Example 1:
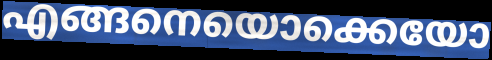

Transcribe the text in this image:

എങ്ങനെയൊക്കെയോ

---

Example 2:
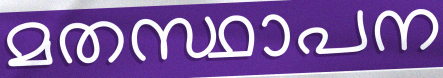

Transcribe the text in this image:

മതസ്ഥാപന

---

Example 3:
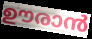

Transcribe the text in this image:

ഊരാൻ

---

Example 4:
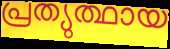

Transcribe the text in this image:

പ്രത്യുത്ഥായ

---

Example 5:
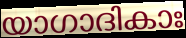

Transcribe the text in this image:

യാഗാദികാഃ